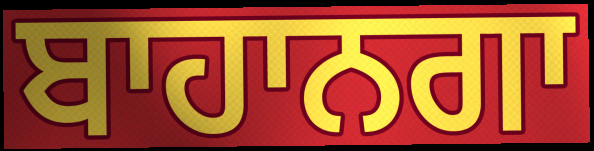
ਬਾਹਾਨਗਾ